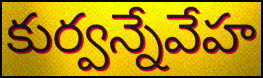
కుర్వన్నేవేహ